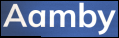
Aamby